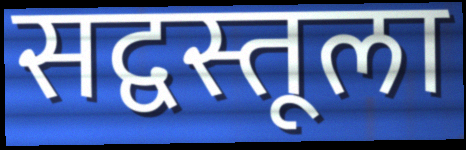
सद्वस्तूला